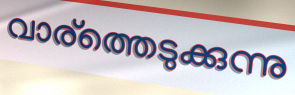
വാര്ത്തെടുക്കുന്നു